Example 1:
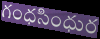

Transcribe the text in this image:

గంధసింధుర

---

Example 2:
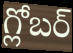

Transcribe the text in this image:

గ్లోబర్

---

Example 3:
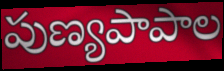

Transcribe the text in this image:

పుణ్యపాపాల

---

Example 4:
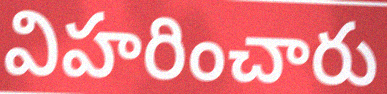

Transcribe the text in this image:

విహరించారు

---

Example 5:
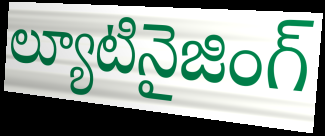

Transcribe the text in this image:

ల్యూటినైజింగ్